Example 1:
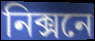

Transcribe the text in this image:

নিক্সনে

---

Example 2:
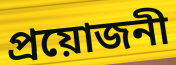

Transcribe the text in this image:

প্ৰয়োজনী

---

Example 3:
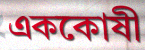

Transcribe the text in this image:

এককোষী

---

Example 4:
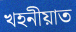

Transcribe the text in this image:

খহনীয়াত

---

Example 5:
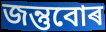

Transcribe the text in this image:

জন্তুবোৰ